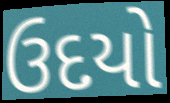
ઉદયો